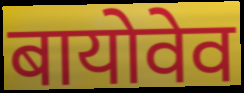
बायोवेव